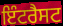
ਇੰਟਰੈਸਟ